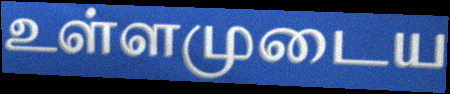
உள்ளமுடைய